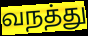
வநத்து